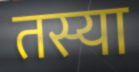
तस्या